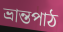
ভ্ৰান্তপাঠ